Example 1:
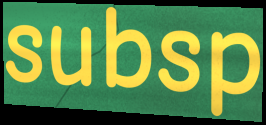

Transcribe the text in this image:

subsp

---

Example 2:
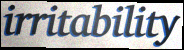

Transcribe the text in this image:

irritability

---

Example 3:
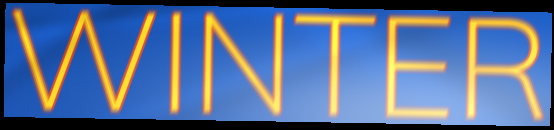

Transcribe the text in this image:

WINTER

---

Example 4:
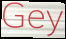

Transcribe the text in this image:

Gey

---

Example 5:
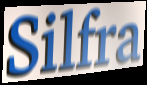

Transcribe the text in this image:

Silfra